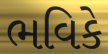
ભવિકે